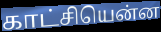
காட்சியென்ன